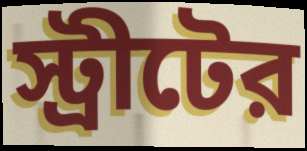
স্ট্রীটের